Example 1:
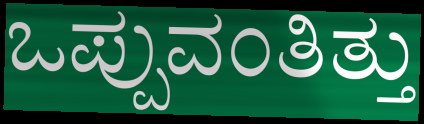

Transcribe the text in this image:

ಒಪ್ಪುವಂತಿತ್ತು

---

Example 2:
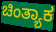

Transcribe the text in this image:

ಚಿಂತ್ಯಾಕ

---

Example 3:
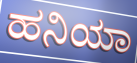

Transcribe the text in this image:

ಹನಿಯಾ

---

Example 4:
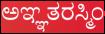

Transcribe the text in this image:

ಅಞ್ಞತರಸ್ಮಿಂ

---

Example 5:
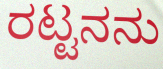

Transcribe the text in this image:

ರಟ್ಟನನು